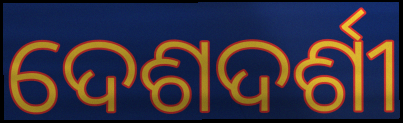
ଦେଶଦର୍ଶୀ